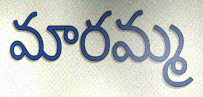
మారమ్మ